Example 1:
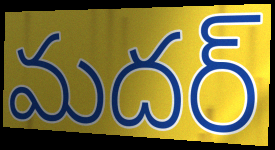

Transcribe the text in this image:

మదర్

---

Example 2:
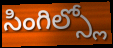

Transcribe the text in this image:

సింగిల్స్లో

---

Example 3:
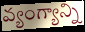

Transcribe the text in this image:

వ్యంగ్యాన్ని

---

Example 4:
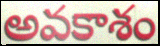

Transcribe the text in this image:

అవకాశం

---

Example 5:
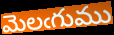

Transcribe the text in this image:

మెలఁగుము